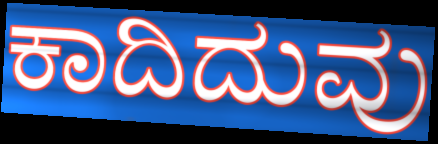
ಕಾದಿದುವು